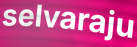
selvaraju